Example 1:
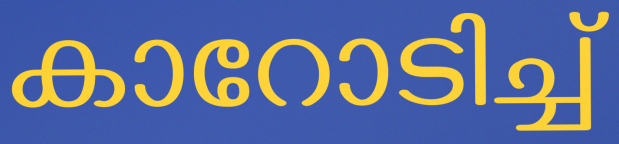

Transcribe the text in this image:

കാറോടിച്ച്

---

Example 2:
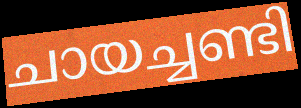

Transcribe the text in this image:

ചായച്ചണ്ടി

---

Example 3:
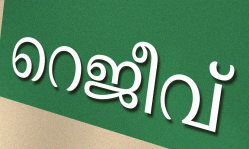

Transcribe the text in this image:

റെജീവ്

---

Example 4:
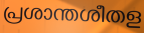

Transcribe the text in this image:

പ്രശാന്തശീതള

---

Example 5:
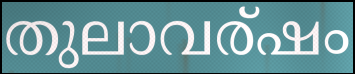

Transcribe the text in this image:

തുലാവര്ഷം